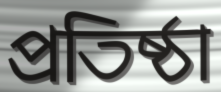
প্রতিষ্ঠা